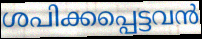
ശപിക്കപ്പെട്ടവൻ